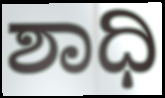
ಶಾಧಿ